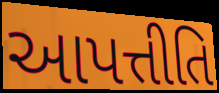
આપત્તીતિ